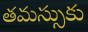
తమస్సుకు